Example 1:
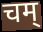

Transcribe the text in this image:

चम्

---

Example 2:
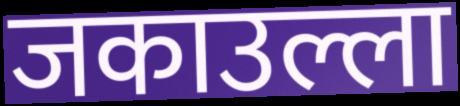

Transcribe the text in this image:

जकाउल्ला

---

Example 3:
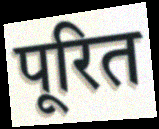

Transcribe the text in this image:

पूरित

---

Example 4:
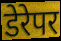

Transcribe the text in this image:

डेरेपर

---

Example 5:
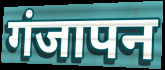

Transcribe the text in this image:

गंजापन